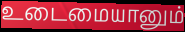
உடைமையானும்